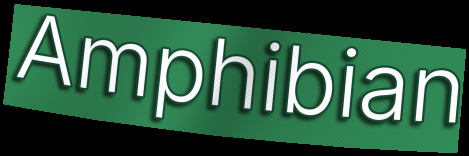
Amphibian